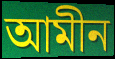
আমীন